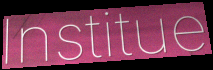
Institue